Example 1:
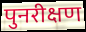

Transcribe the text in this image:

पुनरीक्षण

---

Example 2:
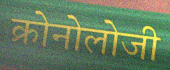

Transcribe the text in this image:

क्रोनोलोजी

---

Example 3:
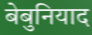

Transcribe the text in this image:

बेबुनियाद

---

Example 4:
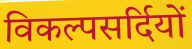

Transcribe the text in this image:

विकल्पसर्दियों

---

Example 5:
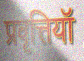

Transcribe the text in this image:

प्रवृत्तियॉ